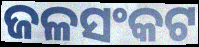
ଜଳସଂକଟ